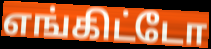
எங்கிட்டோ